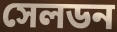
সেলডন